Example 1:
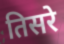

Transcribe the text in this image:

तिसरे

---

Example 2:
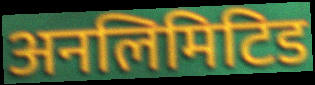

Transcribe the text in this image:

अनलिमिटिड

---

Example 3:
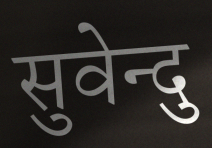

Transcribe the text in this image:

सुवेन्दु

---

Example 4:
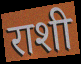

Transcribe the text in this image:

राशी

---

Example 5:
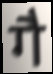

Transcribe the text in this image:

गै